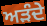
ਅੜੰਦੇ